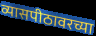
व्यासपीठावरच्या